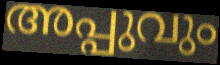
അപ്പുവും